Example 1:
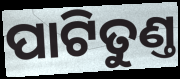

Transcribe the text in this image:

ପାଟିତୁଣ୍ତ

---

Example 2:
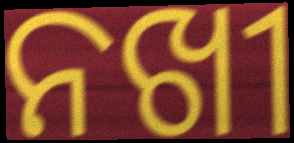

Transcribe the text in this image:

ନଖୀ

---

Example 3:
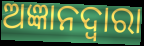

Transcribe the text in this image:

ଅଜ୍ଞାନଦ୍ଵାରା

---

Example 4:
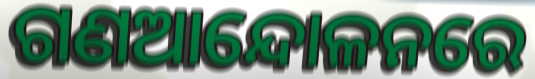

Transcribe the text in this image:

ଗଣଆନ୍ଦୋଳନରେ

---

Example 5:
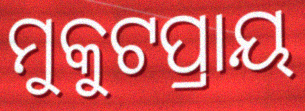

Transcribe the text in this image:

ମୁକୁଟପ୍ରାୟ